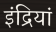
इंद्रियां